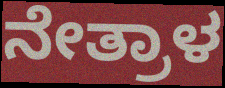
ನೇತ್ರಾಳ